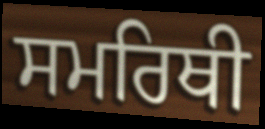
ਸਮਰਿਥੀ